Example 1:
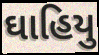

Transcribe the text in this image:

ઘાહિયુ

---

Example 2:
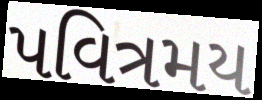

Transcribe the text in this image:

પવિત્રમય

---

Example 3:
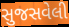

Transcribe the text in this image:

સુજસવેલી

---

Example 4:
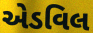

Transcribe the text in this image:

એડવિલ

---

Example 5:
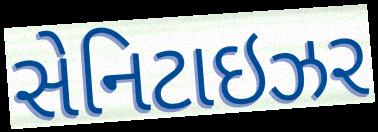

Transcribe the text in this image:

સેનિટાઇઝર